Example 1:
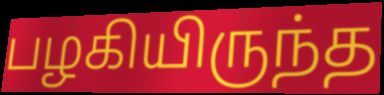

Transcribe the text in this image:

பழகியிருந்த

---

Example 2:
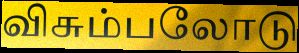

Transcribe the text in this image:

விசும்பலோடு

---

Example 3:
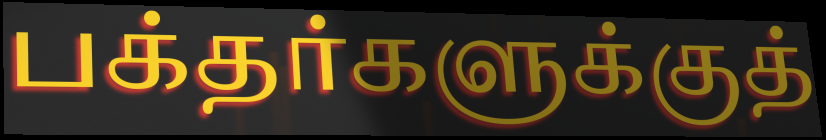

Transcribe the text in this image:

பக்தர்களுக்குத்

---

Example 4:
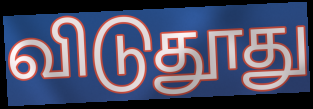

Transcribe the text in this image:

விடுதூது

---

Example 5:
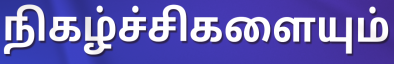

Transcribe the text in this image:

நிகழ்ச்சிகளையும்